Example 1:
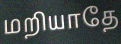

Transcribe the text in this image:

மறியாதே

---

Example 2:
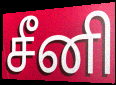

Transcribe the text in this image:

சீனி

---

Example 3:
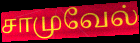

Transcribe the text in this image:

சாமுவேல்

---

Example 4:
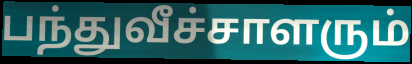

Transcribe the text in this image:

பந்துவீச்சாளரும்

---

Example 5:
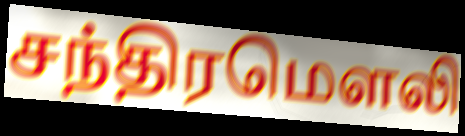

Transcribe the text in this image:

சந்திரமௌலி